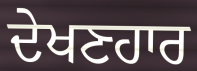
ਦੇਖਣਹਾਰ